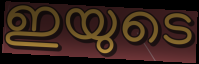
ഇയുടെ